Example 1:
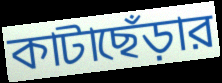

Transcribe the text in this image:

কাটাছেঁড়ার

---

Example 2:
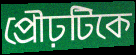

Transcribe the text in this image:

প্রৌঢ়টিকে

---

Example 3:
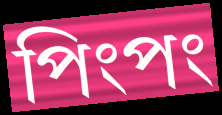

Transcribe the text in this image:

পিংপং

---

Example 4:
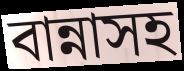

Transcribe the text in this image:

বান্নাসহ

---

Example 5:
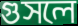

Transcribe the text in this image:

গুসলে